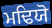
ਮਢਿਯੋ